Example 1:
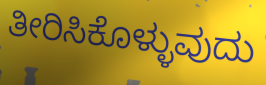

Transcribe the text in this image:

ತೀರಿಸಿಕೊಳ್ಳುವುದು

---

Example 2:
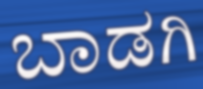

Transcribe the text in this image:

ಬಾಡಗಿ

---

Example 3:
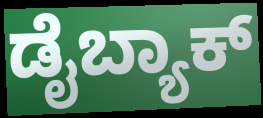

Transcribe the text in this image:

ಡೈಬ್ಯಾಕ್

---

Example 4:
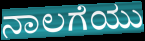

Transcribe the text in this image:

ನಾಲಗೆಯು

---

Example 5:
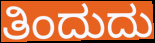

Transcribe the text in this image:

ತಿಂದುದು